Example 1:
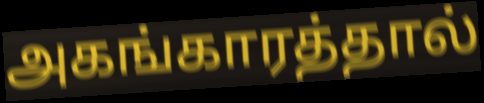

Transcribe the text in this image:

அகங்காரத்தால்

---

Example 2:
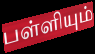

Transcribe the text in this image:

பள்ளியும்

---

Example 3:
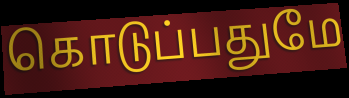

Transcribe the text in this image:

கொடுப்பதுமே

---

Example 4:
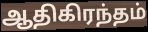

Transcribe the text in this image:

ஆதிகிரந்தம்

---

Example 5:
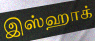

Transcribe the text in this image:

இஸ்ஹாக்